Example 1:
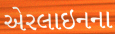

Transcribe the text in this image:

એરલાઇનના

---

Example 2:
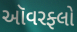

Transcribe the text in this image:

ઑવરફ્લો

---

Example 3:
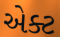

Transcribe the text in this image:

એક્ટ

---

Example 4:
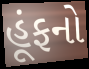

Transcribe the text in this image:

હૂંફનો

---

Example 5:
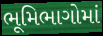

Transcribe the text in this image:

ભૂમિભાગોમાં